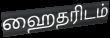
ஹைதரிடம்